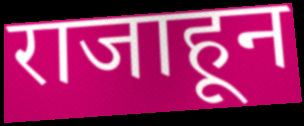
राजाहून